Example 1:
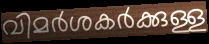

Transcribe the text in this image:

വിമർശകർക്കുള്ള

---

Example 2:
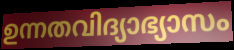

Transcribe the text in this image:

ഉന്നതവിദ്യാഭ്യാസം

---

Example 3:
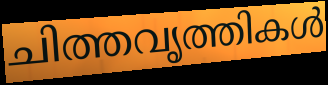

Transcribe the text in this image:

ചിത്തവൃത്തികൾ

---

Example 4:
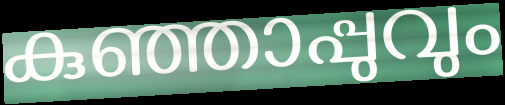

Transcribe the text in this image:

കുഞ്ഞാപ്പുവും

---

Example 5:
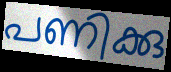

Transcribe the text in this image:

പണിക്കു